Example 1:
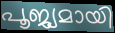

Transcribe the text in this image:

പൂജ്യമായി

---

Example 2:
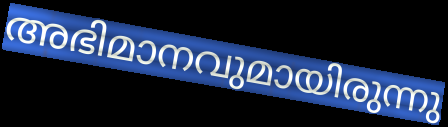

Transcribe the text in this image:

അഭിമാനവുമായിരുന്നു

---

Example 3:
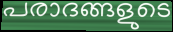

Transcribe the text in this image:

പരാദങ്ങളുടെ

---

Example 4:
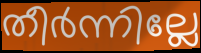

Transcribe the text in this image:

തീർന്നില്ലേ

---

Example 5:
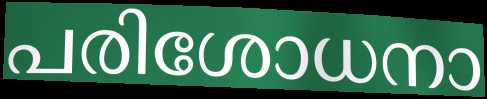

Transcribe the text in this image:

പരിശോധനാ